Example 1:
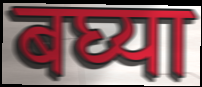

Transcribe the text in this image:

बघ्या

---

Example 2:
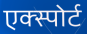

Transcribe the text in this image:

एक्‍स्पोर्ट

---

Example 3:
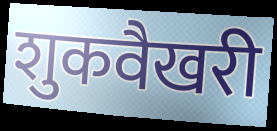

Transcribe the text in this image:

शुकवैखरी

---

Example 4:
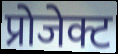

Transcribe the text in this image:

प्रोजेक्ट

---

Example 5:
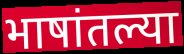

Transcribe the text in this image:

भाषांतल्या